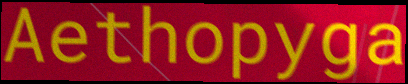
Aethopyga